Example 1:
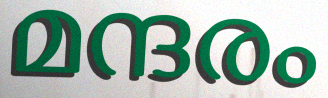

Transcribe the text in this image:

മന്ദരം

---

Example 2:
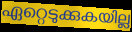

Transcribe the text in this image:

ഏറ്റെടുക്കുകയില്ല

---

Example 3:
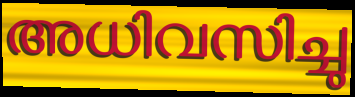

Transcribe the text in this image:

അധിവസിച്ചു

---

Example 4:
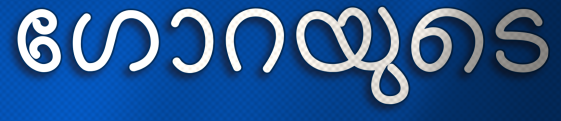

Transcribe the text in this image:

ഗോറയുടെ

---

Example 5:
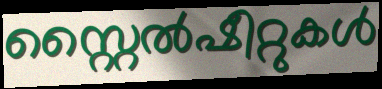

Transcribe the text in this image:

സ്റ്റൈൽഷീറ്റുകൾ